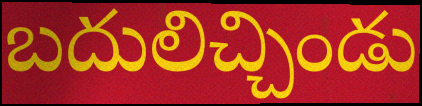
బదులిచ్చిండు